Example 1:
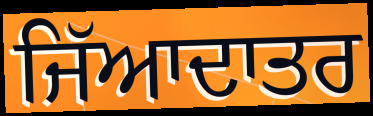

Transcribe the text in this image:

ਜਿੱਆਦਾਤਰ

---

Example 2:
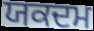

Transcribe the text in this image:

ਯਕਦਮ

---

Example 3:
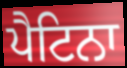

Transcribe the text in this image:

ਪੈਟਿਨਾ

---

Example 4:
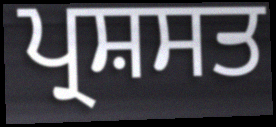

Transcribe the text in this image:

ਪ੍ਰਸ਼ਸਤ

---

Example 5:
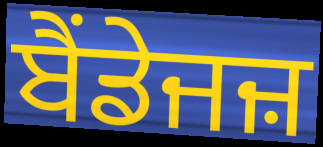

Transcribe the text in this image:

ਬੈਂਡੇਜਜ਼